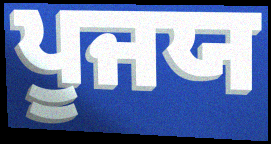
ਪੂਜਯ